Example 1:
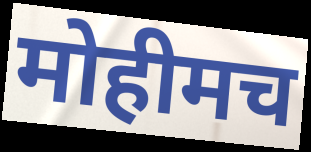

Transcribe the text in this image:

मोहीमच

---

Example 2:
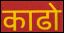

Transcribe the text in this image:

काढो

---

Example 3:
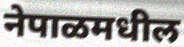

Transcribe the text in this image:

नेपाळमधील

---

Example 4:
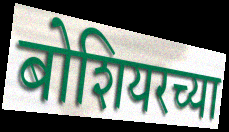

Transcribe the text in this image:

बोशियरच्या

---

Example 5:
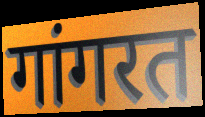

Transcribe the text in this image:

गांगरत